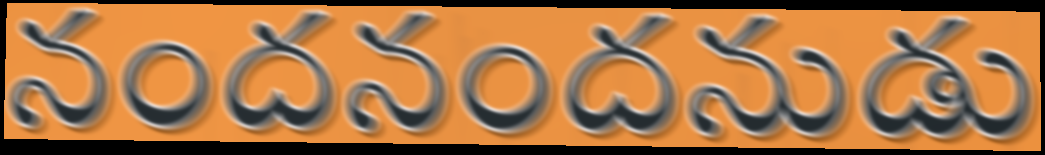
నందనందనుడు